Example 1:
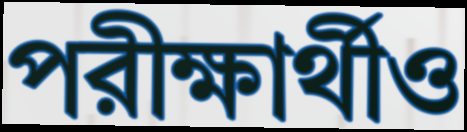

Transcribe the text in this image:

পরীক্ষার্থীও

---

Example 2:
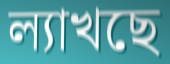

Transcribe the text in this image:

ল্যাখছে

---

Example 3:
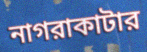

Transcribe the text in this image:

নাগরাকাটার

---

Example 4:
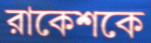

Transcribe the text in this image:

রাকেশকে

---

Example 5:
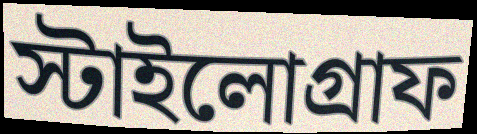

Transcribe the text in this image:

স্টাইলোগ্রাফ